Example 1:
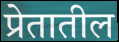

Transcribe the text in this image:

प्रेतातील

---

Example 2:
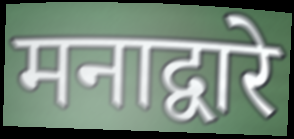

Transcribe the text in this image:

मनाद्वारे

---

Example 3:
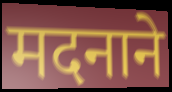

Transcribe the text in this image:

मदनाने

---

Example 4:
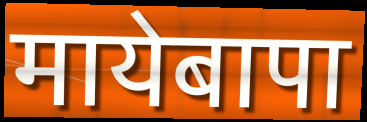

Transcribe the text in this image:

मायेबापा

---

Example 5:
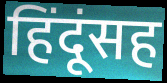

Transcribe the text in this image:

हिंदूंसह